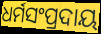
ଧର୍ମସଂପ୍ରଦାୟ